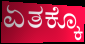
ಏತಕ್ಕೊ